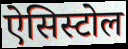
ऐसिस्टोल